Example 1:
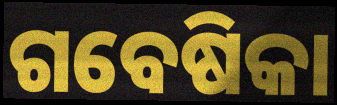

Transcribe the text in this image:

ଗବେଷିକା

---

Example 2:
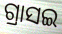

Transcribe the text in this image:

ଗ୍ରାସଇ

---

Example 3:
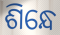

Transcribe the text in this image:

ଶିନ୍ଧେ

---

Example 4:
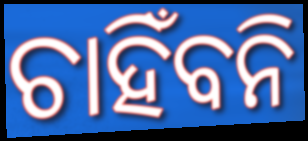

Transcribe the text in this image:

ଚାହିଁବନି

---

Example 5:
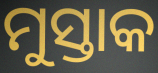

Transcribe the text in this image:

ମୁସ୍ତାକ